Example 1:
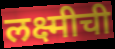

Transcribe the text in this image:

लक्ष्मीची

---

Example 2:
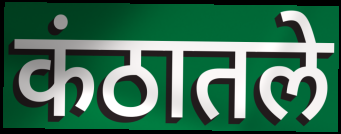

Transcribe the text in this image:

कंठातले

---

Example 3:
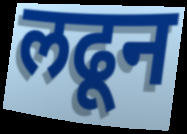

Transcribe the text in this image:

लढून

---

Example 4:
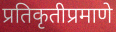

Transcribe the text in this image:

प्रतिकृतीप्रमाणे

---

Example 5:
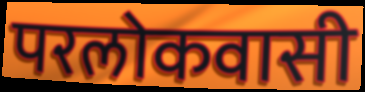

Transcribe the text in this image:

परलोकवासी